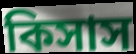
কিসাস